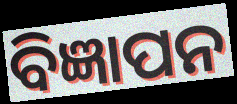
ବିଜ୍ଞାପନ